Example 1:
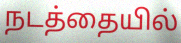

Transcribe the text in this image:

நடத்தையில்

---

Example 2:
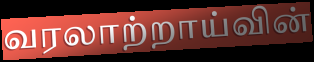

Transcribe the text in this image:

வரலாற்றாய்வின்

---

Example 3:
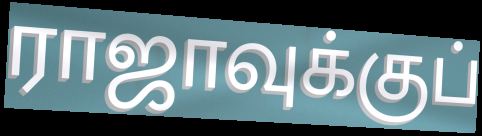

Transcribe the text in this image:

ராஜாவுக்குப்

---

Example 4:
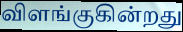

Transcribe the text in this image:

விளங்குகின்றது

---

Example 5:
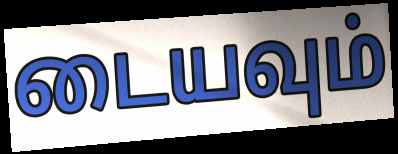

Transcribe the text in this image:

டையவும்